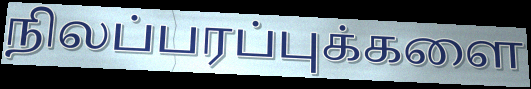
நிலப்பரப்புக்களை